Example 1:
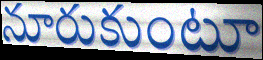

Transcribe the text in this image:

నూరుకుంటూ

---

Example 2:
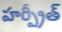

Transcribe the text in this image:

హర్ప్రీత్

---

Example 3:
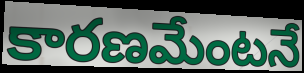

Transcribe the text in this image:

కారణమేంటనే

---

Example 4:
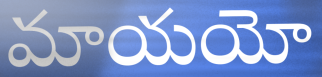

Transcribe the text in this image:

మాయయో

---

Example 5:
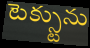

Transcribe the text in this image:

టెక్స్టును